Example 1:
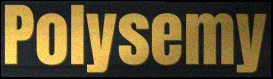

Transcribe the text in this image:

Polysemy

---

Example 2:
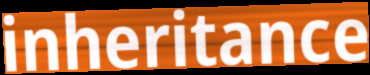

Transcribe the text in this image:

inheritance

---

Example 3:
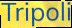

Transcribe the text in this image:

Tripoli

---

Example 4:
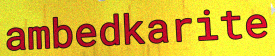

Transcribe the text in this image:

ambedkarite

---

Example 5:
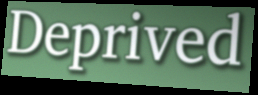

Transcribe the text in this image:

Deprived